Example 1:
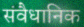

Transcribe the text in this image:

संवैधानिक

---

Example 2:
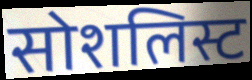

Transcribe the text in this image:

सोशलिस्ट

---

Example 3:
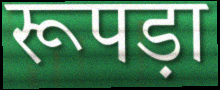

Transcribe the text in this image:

रूपड़ा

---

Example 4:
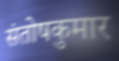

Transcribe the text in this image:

संतोषकुमार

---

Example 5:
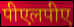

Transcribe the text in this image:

पीएलपीए